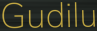
Gudilu